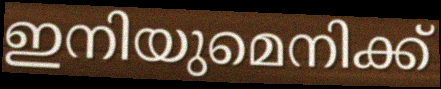
ഇനിയുമെനിക്ക്